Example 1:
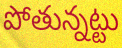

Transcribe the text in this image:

పోతున్నట్టు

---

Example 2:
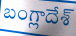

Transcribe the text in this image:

బంగ్లాదేశ్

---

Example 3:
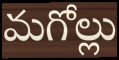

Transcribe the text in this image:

మగోల్లు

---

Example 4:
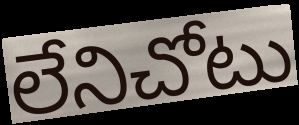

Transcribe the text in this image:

లేనిచోటు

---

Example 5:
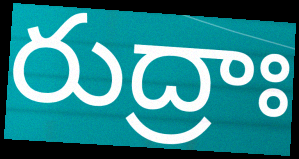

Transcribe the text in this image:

రుద్రాః